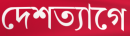
দেশত্যাগে